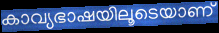
കാവ്യഭാഷയിലൂടെയാണ്